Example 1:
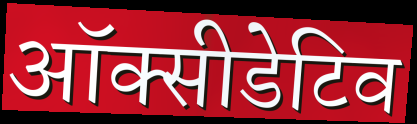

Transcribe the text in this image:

ऑक्सीडेटिव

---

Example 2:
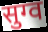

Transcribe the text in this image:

सुग्व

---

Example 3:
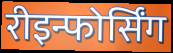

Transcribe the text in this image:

रीइन्फोर्सिंग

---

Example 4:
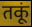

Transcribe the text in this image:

तकूं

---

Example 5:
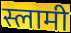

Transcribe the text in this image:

स्लामी